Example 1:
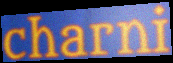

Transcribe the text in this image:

charni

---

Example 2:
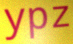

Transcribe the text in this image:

ypz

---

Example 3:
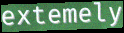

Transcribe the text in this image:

extemely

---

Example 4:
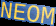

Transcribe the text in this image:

NEOM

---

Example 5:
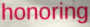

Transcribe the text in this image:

honoring